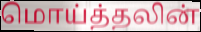
மொய்த்தலின்